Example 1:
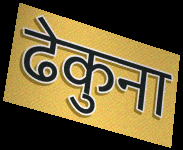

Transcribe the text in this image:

ढेकुना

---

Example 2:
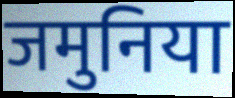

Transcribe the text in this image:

जमुनिया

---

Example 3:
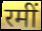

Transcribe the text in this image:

रमीं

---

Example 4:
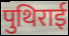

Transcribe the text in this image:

पुथिराई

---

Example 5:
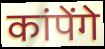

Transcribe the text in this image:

कांपेंगे